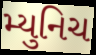
મ્યુનિચ